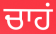
ਚਾਹਂ